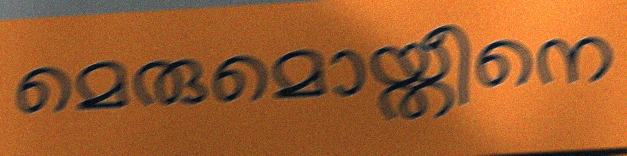
മെരുമൊയ്തീനെ